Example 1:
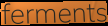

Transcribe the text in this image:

ferments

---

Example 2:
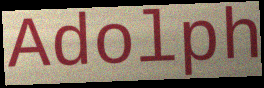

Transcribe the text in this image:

Adolph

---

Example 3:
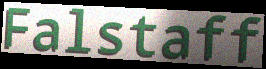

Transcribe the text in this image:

Falstaff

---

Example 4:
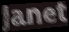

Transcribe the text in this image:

Janet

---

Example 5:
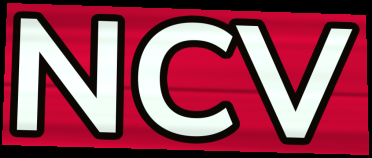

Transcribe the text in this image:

NCV